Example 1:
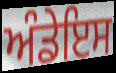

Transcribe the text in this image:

ਅੰਡੇਇਸ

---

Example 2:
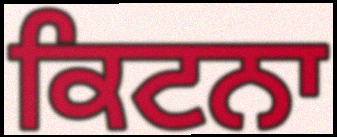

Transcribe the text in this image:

ਕਿਟਨਾ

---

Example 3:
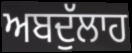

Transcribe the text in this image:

ਅਬਦੁੱਲਾਹ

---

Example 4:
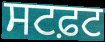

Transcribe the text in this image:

ਸਟਫ਼ਟ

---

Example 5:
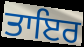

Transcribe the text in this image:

ਤਾਇਰ